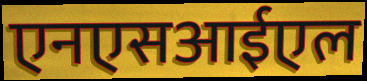
एनएसआईएल